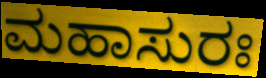
ಮಹಾಸುರಃ